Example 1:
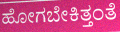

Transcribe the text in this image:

ಹೋಗಬೇಕಿತ್ತಂತೆ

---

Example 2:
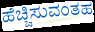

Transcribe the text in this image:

ಹೆಚ್ಚಿಸುವಂತಹ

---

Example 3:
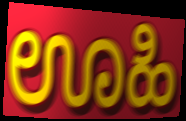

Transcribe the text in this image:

ಊಹಿ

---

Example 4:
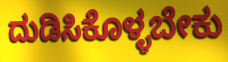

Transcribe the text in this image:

ದುಡಿಸಿಕೊಳ್ಳಬೇಕು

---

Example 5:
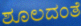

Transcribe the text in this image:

ಶೂಲದಂತೆ